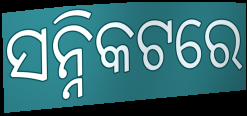
ସନ୍ନିକଟରେ